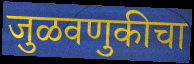
जुळवणुकीचा